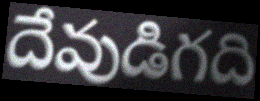
దేవుడిగది